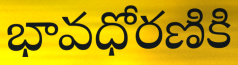
భావధోరణికి